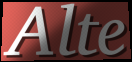
Alte